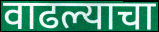
वाढल्याचा